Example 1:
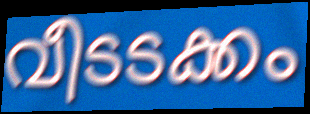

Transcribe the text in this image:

വീടടക്കം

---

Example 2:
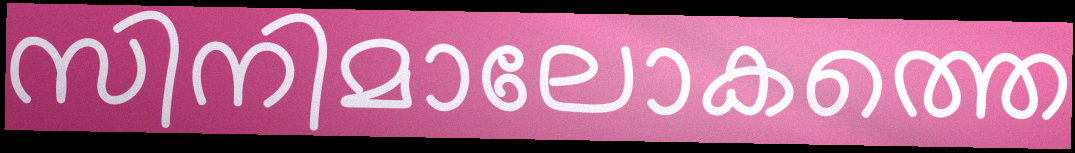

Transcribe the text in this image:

സിനിമാലോകത്തെ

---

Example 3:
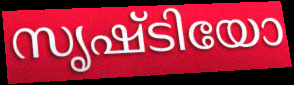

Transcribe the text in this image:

സൃഷ്ടിയോ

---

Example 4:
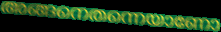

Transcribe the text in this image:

അങ്ങനെതന്നെയാണോ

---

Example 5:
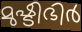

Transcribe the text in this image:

മുഷ്ടിഭിർ